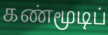
கண்மூடிப்